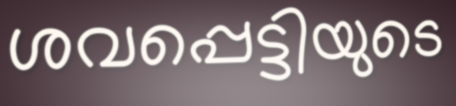
ശവപ്പെട്ടിയുടെ